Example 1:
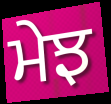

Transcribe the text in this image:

ਮੇਝ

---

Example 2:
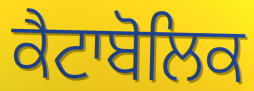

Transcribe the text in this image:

ਕੈਟਾਬੋਲਿਕ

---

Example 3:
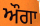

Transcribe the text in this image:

ਔਗਾ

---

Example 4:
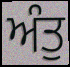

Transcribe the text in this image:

ਅੰਤੁ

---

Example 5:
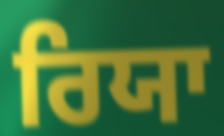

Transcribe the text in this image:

ਰਿਯਾ